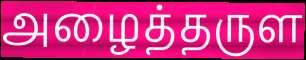
அழைத்தருள